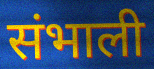
संभाली